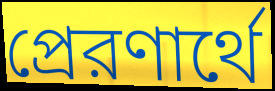
প্রেরণার্থে